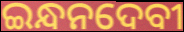
ଇନ୍ଧନଦେବୀ